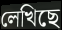
লেখিছে